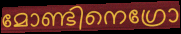
മോണ്ടിനെഗ്രോ